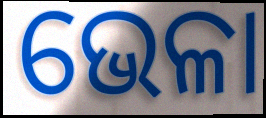
ଭେଳା